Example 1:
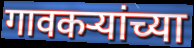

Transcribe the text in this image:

गावकर्‍यांच्या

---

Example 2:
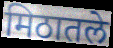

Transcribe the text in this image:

मिठातले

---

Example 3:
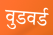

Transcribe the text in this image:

वुडवर्ड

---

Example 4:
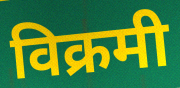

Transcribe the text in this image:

विक्रमी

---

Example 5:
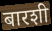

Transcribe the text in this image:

बारशी